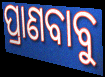
ପ୍ରାଣବାବୁ